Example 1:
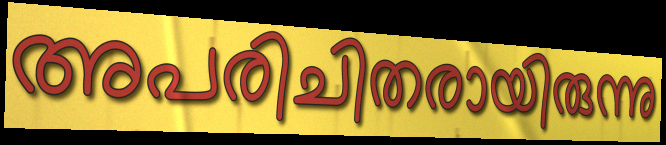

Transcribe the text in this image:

അപരിചിതരായിരുന്നു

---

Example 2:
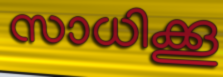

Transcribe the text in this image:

സാധിക്കൂ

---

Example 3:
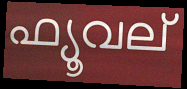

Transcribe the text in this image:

ഫ്യൂവല്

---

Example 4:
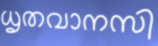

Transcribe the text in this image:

ധൃതവാനസി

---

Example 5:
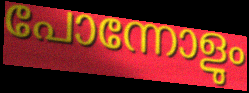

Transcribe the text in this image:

പോന്നോളും